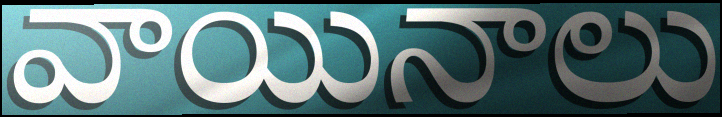
వాయినాలు